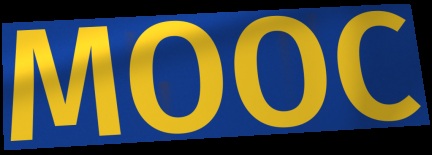
MOOC